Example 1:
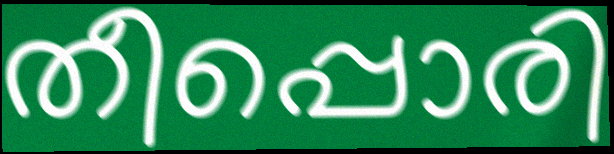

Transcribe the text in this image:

തീപ്പൊരി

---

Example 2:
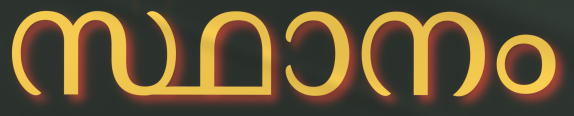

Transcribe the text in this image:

സ്ഥാനം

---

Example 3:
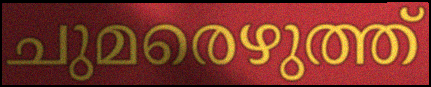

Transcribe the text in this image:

ചുമരെഴുത്ത്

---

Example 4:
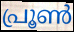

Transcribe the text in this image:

പ്രൂൺ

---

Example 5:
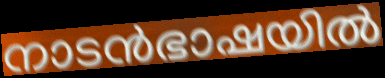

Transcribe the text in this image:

നാടൻഭാഷയിൽ